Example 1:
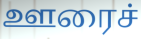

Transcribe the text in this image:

ஊரைச்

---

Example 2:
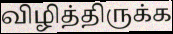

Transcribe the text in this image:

விழித்திருக்க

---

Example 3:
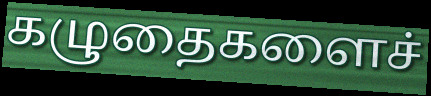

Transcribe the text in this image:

கழுதைகளைச்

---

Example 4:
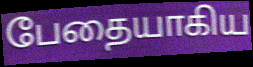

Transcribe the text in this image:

பேதையாகிய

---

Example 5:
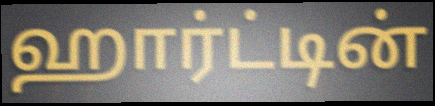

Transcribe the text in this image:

ஹார்ட்டின்